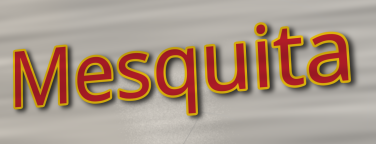
Mesquita